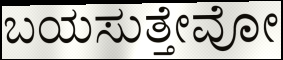
ಬಯಸುತ್ತೇವೋ